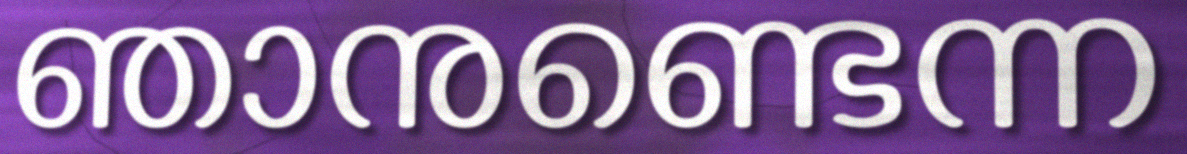
ഞാനുണ്ടെന്ന